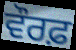
ਵੌਰਫ਼